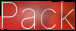
Pack